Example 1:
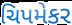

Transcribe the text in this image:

ચિપમેકર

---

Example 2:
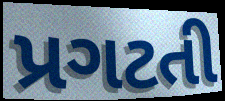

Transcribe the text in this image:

પ્રગટતી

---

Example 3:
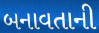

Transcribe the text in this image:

બનાવતાની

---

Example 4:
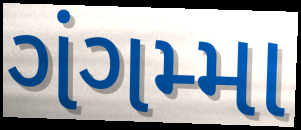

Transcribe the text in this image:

ગંગમ્મા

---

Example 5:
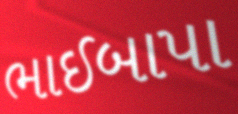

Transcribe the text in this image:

ભાઈબાપા